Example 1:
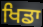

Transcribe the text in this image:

ਖਿਡਾ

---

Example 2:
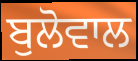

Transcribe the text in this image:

ਬੁਲੋਵਾਲ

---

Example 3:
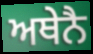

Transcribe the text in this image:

ਅਥੇਨੈ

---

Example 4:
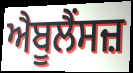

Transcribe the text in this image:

ਐਬੂਲੈਂਸਜ਼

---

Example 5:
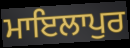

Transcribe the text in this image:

ਮਾਇਲਾਪੁਰ